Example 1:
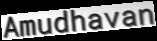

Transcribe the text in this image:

Amudhavan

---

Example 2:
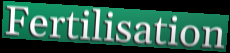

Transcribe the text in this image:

Fertilisation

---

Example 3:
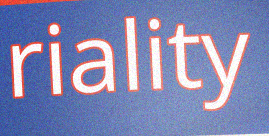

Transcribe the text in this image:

riality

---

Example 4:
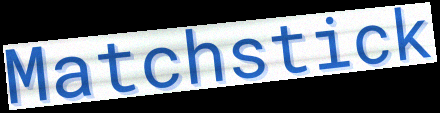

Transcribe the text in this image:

Matchstick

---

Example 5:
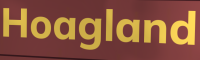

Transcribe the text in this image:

Hoagland